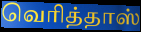
வெரித்தாஸ்